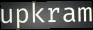
upkram